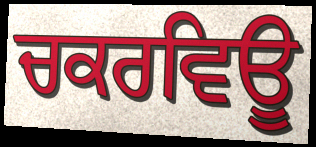
ਚਕਰਵਿਊ